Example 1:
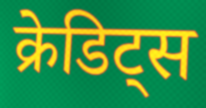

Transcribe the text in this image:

क्रेडिट्स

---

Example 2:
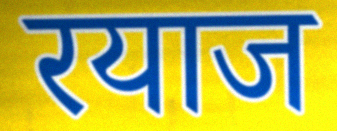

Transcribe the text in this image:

रयाज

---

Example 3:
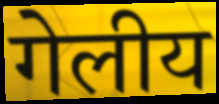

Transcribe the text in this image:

गेलीय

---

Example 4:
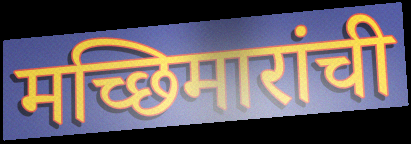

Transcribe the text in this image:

मच्छिमारांची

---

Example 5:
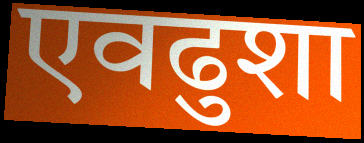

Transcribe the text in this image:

एवढुशा